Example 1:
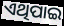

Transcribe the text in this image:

ଏଥିପାଇ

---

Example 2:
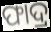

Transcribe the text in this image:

ଫାଦ୍ର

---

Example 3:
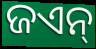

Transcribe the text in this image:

ଜଏନ୍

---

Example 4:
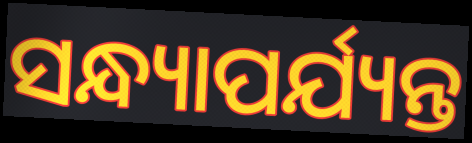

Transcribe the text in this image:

ସନ୍ଧ୍ୟାପର୍ଯ୍ୟନ୍ତ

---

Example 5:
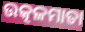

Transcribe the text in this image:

ଉତ୍କଳମାତା